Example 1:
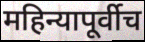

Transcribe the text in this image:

महिन्यापूर्वीच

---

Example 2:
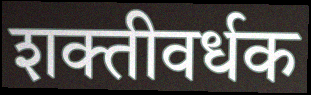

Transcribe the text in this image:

शक्तीवर्धक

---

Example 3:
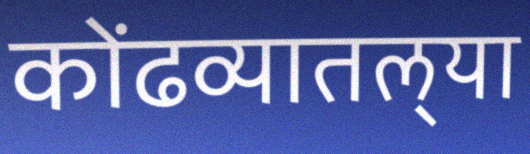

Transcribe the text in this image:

कोंढव्यातल्या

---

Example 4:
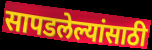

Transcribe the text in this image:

सापडलेल्यांसाठी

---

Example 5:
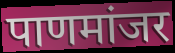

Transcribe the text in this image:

पाणमांजर